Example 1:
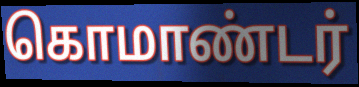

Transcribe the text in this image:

கொமாண்டர்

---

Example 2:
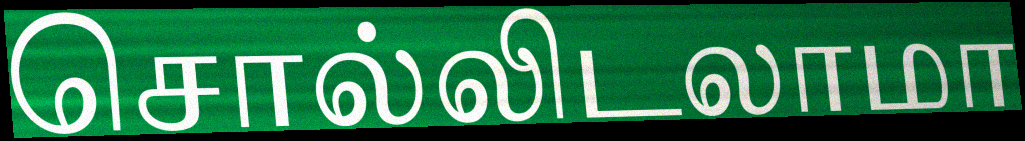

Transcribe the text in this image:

சொல்லிடலாமா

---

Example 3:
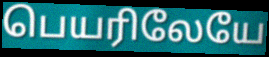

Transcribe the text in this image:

பெயரிலேயே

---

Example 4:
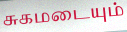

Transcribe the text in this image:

சுகமடையும்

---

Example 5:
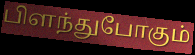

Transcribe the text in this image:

பிளந்துபோகும்